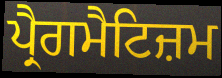
ਪ੍ਰੈਗਮੈਟਿਜ਼ਮ